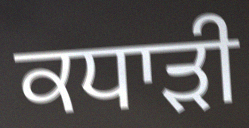
ਕਧਾੜੀ